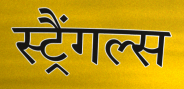
स्ट्रैंगल्स